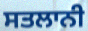
ਸਤਲਾਨੀ